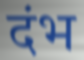
दंभ